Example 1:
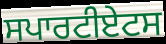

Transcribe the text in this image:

ਸਪਾਰਟੀਏਟਸ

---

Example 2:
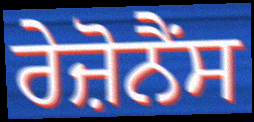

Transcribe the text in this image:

ਰੇਜ਼ੋਨੈਂਸ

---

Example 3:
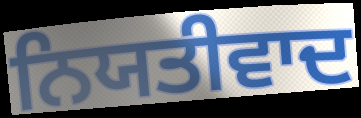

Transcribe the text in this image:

ਨਿਯਤੀਵਾਦ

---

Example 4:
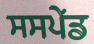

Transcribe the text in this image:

ਸਸਪੇੰਡ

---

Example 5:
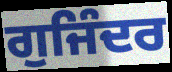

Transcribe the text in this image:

ਗੁਜਿੰਦਰ